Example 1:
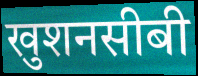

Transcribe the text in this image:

खुशनसीबी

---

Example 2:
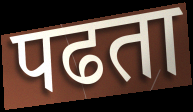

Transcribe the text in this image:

पढता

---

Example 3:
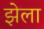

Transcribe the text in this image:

झेला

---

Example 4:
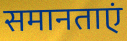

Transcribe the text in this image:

समानताएं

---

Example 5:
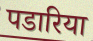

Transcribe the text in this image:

पडारिया